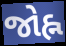
જોહ્ન